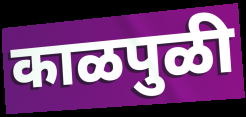
काळपुळी